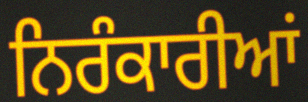
ਨਿਰੰਕਾਰੀਆਂ